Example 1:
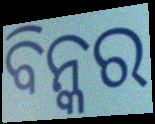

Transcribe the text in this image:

ବିନ୍କର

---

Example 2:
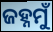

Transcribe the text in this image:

ଜହ୍ନମୁଁ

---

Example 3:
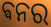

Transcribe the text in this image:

ଵନର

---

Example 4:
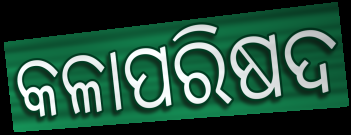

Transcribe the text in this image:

କଳାପରିଷଦ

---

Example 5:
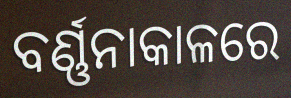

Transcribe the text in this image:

ବର୍ଣ୍ଣନାକାଳରେ